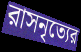
রাসনৃত্যের